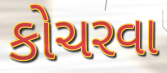
કોચરવા